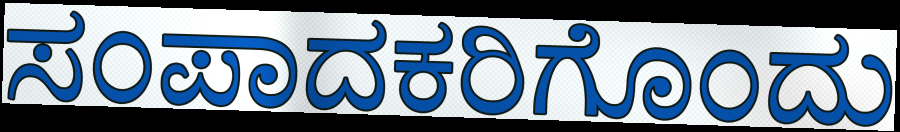
ಸಂಪಾದಕರಿಗೊಂದು